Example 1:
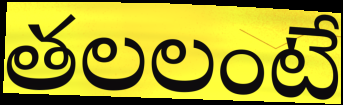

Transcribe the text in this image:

తలలంటే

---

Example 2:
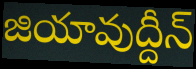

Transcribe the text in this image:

జియావుద్దీన్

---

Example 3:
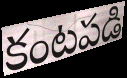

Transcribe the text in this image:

కంటపడి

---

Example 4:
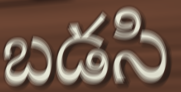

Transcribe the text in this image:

బడసి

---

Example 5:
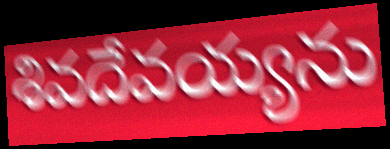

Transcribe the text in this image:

శివదేవయ్యను